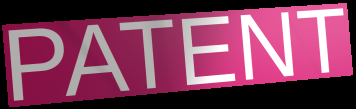
PATENT